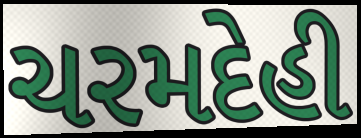
ચરમદેહી